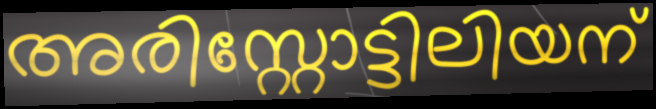
അരിസ്റ്റോട്ടിലിയന്